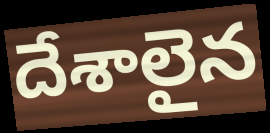
దేశాలైన